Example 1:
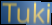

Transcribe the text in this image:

Tuki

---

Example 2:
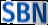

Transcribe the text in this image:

SBN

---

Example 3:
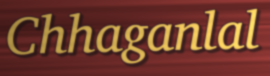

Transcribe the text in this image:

Chhaganlal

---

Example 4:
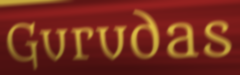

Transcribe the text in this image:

Gurudas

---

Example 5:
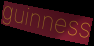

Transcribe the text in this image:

guinness